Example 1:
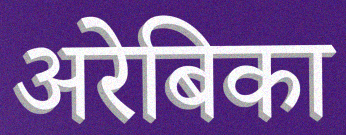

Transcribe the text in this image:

अरेबिका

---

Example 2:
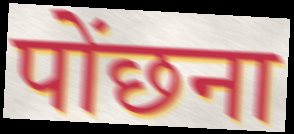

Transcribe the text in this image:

पोंछना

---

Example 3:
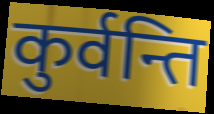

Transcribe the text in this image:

कुर्वन्ति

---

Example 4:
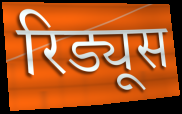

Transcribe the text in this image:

रिड्यूस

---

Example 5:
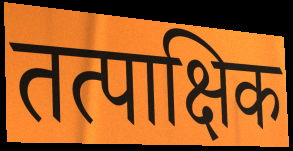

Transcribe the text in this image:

तत्पाक्षिक